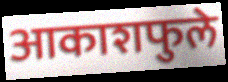
आकाशफुले